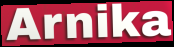
Arnika